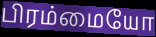
பிரம்மையோ